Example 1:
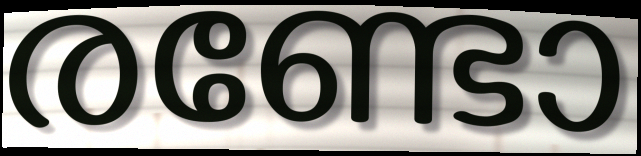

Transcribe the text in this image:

രണ്ടോ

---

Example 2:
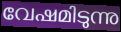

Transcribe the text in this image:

വേഷമിടുന്നു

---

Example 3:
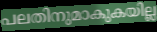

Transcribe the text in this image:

പലതിനുമാകുകയില്ല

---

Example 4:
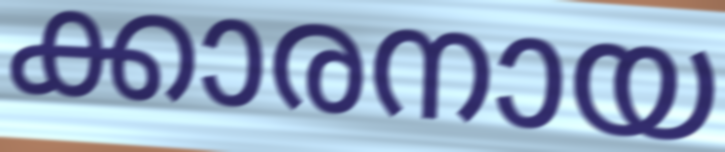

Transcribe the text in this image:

ക്കാരനായ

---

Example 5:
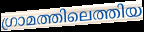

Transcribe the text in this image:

ഗ്രാമത്തിലെത്തിയ